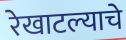
रेखाटल्याचे